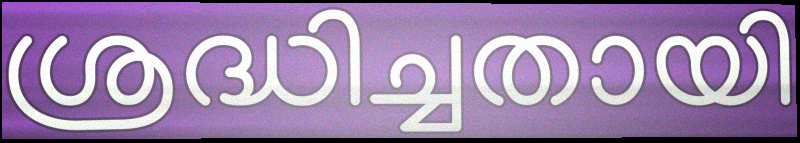
ശ്രദ്ധിച്ചതായി